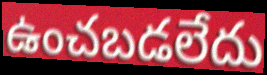
ఉంచబడలేదు